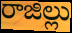
రాజిల్లు